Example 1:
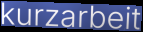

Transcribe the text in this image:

kurzarbeit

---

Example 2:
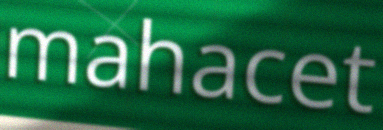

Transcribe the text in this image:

mahacet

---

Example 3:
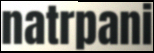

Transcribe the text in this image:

natrpani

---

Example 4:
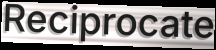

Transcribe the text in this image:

Reciprocate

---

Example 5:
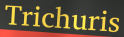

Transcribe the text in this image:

Trichuris